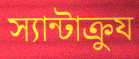
স্যান্টাক্রুয